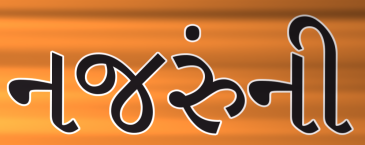
નજરુંની